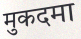
मुकदमा